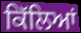
ਕਿੱਲਿਆਂ